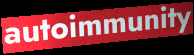
autoimmunity